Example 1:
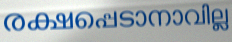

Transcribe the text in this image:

രക്ഷപ്പെടാനാവില്ല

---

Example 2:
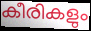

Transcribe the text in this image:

കീരികളും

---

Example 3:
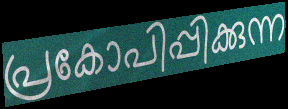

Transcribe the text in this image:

പ്രകോപിപ്പിക്കുന്ന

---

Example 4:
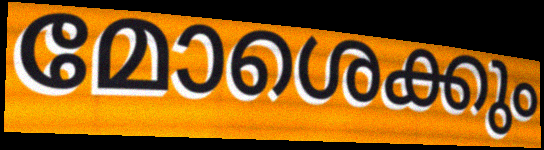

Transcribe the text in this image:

മോശെക്കും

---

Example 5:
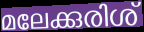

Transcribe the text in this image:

മലേക്കുരിശ്